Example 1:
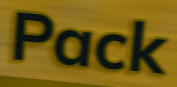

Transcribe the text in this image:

Pack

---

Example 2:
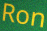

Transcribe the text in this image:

Ron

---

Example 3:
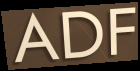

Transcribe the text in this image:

ADF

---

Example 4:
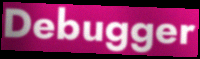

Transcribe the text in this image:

Debugger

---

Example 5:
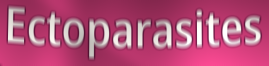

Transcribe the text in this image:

Ectoparasites